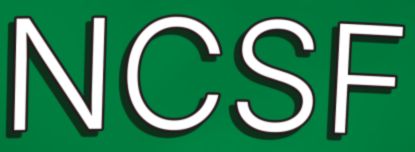
NCSF